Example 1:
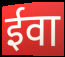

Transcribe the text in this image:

ईवा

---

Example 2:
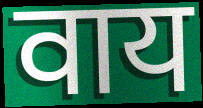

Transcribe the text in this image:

वाय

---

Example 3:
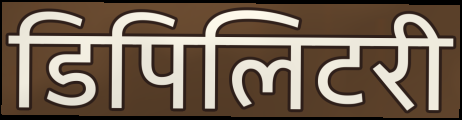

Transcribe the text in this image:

डिपिलिटरी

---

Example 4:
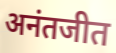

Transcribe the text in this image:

अनंतजीत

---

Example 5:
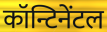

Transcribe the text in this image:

कॉन्टिनेंटल